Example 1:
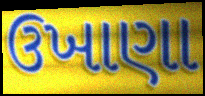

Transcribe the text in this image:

ઉખાણા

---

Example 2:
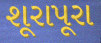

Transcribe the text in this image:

શૂરાપૂરા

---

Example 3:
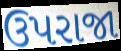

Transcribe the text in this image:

ઉપરાજા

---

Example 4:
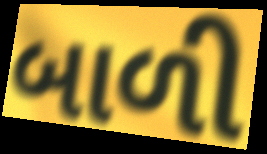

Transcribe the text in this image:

બાળી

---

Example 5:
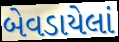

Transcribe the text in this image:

બેવડાયેલાં